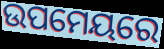
ଉପମେୟରେ